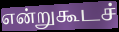
என்றுகூடச்